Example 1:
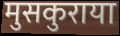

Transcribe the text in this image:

मुसकुराया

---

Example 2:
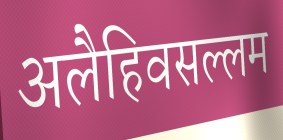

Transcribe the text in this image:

अलैहिवसल्लम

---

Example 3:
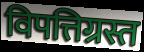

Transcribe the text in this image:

विपत्तिग्रस्त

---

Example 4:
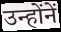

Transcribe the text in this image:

उन्‍होंनें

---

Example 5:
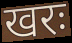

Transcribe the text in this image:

खरः